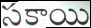
సకాయి